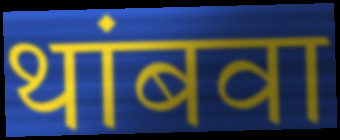
थांबवा